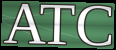
ATC